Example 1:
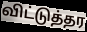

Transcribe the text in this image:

விட்டுத்தர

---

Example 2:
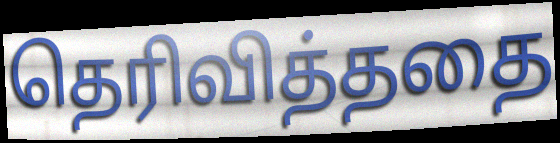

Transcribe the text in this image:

தெரிவித்ததை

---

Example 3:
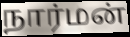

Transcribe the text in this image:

நார்மன்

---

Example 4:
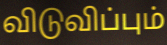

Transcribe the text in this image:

விடுவிப்பும்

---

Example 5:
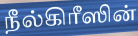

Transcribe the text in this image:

நீல்கிரீஸின்